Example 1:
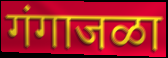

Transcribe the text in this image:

गंगाजळा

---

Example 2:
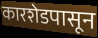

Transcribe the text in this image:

कारशेडपासून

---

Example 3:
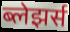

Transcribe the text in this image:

ब्लेझर्स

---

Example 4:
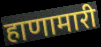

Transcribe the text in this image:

हाणामारी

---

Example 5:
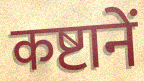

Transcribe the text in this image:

कष्टानें